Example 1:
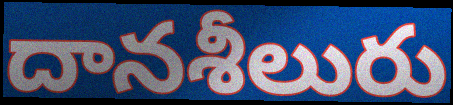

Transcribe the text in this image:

దానశీలురు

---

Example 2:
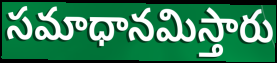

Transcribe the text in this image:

సమాధానమిస్తారు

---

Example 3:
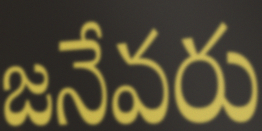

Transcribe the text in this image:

జనేవరు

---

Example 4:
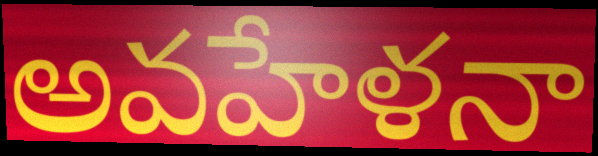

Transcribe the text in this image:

అవహేళనా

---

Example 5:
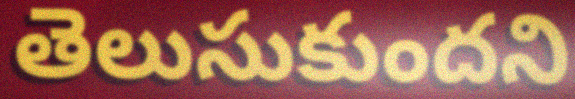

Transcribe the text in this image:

తెలుసుకుందని